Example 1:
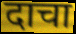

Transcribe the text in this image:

दाचा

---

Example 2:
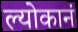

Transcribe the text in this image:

ल्योकानं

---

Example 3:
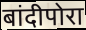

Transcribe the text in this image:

बांदीपोरा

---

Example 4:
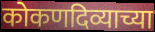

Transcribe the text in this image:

कोकणदिव्याच्या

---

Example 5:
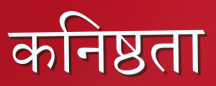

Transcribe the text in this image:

कनिष्ठता